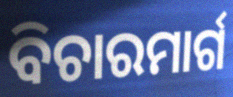
ବିଚାରମାର୍ଗ